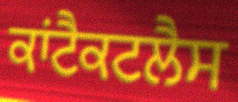
ਕਾਂਟੈਕਟਲੈਸ